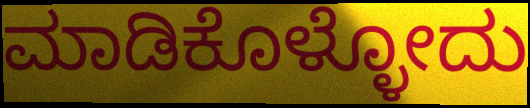
ಮಾಡಿಕೊಳ್ಳೋದು